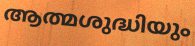
ആത്മശുദ്ധിയും